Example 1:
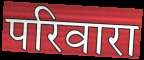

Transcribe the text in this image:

परिवारा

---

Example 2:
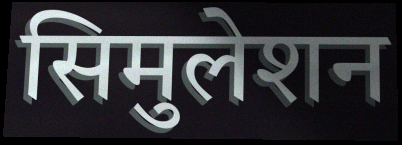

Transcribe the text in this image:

सिमुलेशन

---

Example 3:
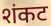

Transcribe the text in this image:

शंकट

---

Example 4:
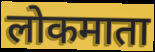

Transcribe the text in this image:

लोकमाता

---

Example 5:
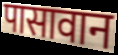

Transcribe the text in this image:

पासावान